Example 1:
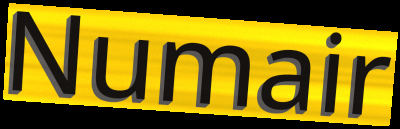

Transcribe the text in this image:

Numair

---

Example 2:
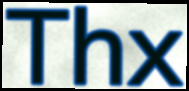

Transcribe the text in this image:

Thx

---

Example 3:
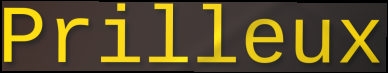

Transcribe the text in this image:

Prilleux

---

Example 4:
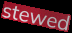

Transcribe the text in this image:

stewed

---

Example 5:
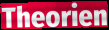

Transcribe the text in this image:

Theorien